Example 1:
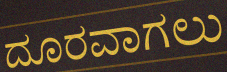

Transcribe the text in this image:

ದೂರವಾಗಲು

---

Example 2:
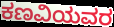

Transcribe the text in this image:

ಕಣವಿಯವರ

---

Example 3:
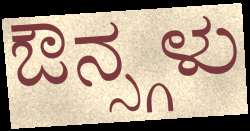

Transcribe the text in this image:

ಔನ್ಸ್ಗಳು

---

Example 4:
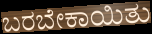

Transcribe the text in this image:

ಬರಬೇಕಾಯಿತು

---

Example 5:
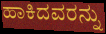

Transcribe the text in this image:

ಹಾಕಿದವರನ್ನು